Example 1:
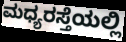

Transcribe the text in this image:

ಮಧ್ಯರಸ್ತೆಯಲ್ಲಿ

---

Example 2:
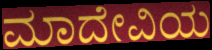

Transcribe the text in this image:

ಮಾದೇವಿಯ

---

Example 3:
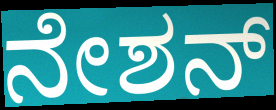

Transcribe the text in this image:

ನೇಶನ್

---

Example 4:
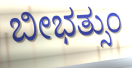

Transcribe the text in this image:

ಬೀಭತ್ಸುಂ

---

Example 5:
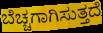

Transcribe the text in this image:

ಬೆಚ್ಚಗಾಗಿಸುತ್ತದೆ